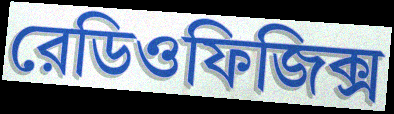
রেডিওফিজিক্স